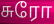
சுரோ